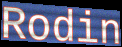
Rodin